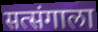
सत्संगाला